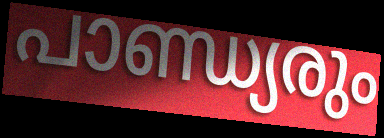
പാണ്ഡ്യരും